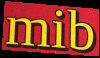
mib